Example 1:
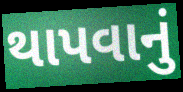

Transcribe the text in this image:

થાપવાનું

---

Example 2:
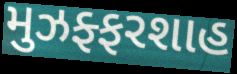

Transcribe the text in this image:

મુઝફ્ફરશાહ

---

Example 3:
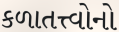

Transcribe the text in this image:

કળાતત્ત્વોનો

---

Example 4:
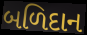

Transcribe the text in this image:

બળિદાન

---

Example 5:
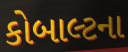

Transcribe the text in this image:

કોબાલ્ટના